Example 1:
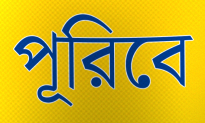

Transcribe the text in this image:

পূরিবে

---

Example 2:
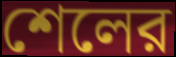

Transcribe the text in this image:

শেলের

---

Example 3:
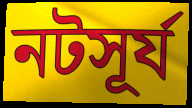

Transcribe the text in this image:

নটসূর্য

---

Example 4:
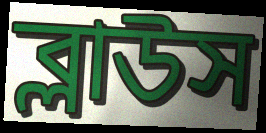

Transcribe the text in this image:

ব্লাউস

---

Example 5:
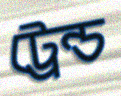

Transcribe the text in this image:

ট্রেন্ড